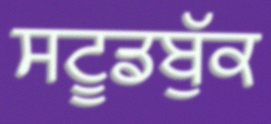
ਸਟੂਡਬੁੱਕ